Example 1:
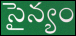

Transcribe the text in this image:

సైన్యం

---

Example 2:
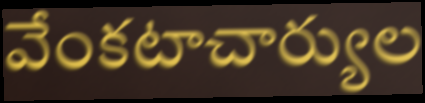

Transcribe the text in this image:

వేంకటాచార్యుల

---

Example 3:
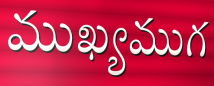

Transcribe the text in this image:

ముఖ్యముగ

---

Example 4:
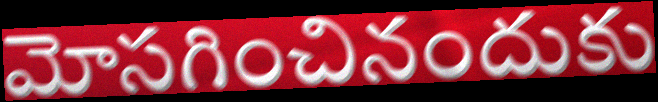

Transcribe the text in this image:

మోసగించినందుకు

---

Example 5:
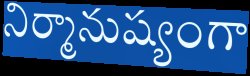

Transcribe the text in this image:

నిర్మానుష్యంగా